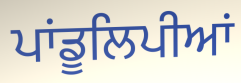
ਪਾਂਡੂਲਿਪੀਆਂ